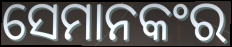
ସେମାନକଂର